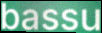
bassu